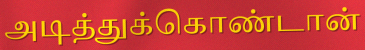
அடித்துக்கொண்டான்